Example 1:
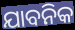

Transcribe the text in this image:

ଯାବନିକ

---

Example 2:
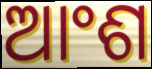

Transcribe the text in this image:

ଆଂଶ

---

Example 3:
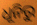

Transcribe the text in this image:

ଧୂନିରୁ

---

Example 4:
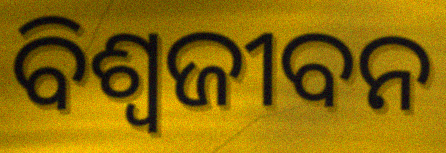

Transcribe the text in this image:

ବିଶ୍ଵଜୀବନ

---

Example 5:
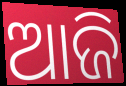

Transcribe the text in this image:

ଆଜି